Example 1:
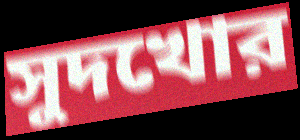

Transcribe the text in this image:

সুদখোর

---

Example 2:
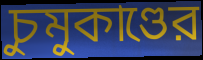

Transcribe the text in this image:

চুমুকাণ্ডের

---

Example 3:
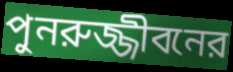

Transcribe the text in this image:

পুনরুজ্জীবনের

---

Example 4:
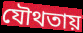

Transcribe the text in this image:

যৌথতায়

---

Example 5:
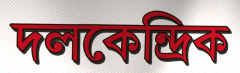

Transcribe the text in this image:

দলকেন্দ্রিক